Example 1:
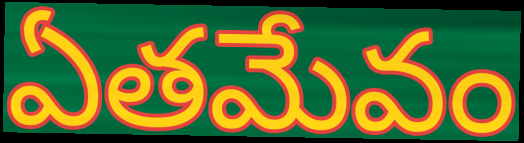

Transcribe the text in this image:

ఏతమేవం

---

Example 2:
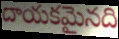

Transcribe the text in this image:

దాయకమైనది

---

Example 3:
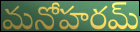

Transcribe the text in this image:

మనోహరమ్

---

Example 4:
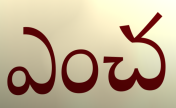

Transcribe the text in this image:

ఎంచ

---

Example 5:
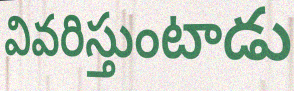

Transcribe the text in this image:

వివరిస్తుంటాడు